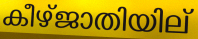
കീഴ്ജാതിയില്